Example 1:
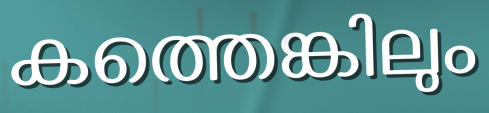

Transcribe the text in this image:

കത്തെങ്കിലും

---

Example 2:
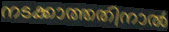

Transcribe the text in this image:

നടക്കാത്തതിനാൽ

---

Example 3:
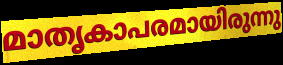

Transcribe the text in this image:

മാതൃകാപരമായിരുന്നു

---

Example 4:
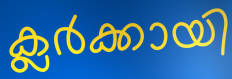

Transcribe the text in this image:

ക്ലർക്കായി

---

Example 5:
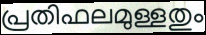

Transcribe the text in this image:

പ്രതിഫലമുള്ളതും